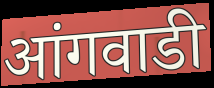
आंगवाडी